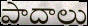
పాదాలు